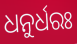
ଧନୁର୍ଧରଃ